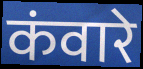
कंवारे